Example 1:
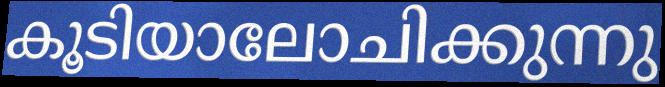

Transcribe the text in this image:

കൂടിയാലോചിക്കുന്നു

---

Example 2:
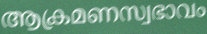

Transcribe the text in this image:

ആക്രമണസ്വഭാവം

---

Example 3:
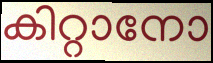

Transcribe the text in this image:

കിറ്റാനോ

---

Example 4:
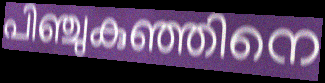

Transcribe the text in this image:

പിഞ്ചുകുഞ്ഞിനെ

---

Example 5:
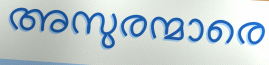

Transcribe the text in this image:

അസുരന്മാരെ